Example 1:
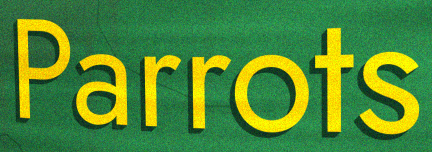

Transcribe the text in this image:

Parrots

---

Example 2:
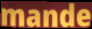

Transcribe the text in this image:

mande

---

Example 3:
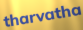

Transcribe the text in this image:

tharvatha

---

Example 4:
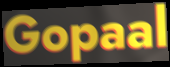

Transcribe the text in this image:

Gopaal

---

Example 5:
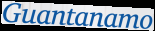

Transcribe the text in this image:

Guantanamo